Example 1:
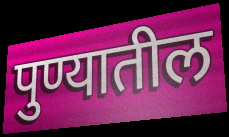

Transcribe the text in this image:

पुण्यातील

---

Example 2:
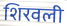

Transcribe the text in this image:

शिरवली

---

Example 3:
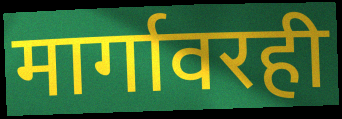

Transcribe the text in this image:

मार्गावरही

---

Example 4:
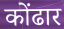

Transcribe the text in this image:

कोंढार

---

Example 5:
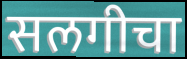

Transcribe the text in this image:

सलगीचा